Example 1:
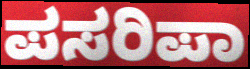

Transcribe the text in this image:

ಪಸರಿಪಾ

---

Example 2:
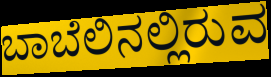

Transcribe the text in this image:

ಬಾಬೆಲಿನಲ್ಲಿರುವ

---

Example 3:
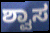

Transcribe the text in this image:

ಶ್ವಾಸ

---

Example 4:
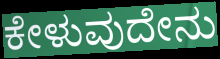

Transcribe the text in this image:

ಕೇಳುವುದೇನು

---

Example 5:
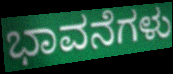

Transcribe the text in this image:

ಭಾವನೆಗಳು